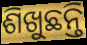
ଶିଖୁଛନ୍ତି